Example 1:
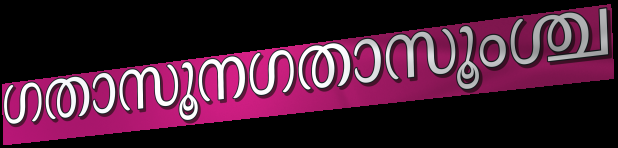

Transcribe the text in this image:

ഗതാസൂനഗതാസൂംശ്ച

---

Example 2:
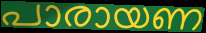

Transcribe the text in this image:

പാരായണ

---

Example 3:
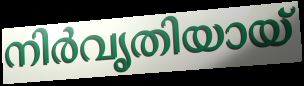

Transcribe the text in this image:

നിർവൃതിയായ്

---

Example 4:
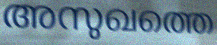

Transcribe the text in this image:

അസുഖത്തെ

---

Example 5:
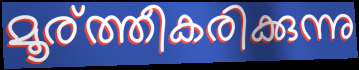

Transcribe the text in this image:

മൂര്ത്തീകരിക്കുന്നു